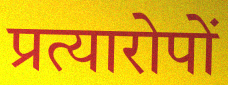
प्रत्यारोपों